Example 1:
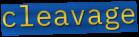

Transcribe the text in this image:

cleavage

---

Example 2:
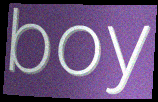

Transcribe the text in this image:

boy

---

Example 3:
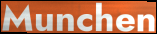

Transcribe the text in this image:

Munchen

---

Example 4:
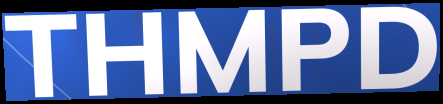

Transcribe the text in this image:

THMPD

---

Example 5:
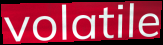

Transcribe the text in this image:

volatile